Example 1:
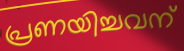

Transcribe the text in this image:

പ്രണയിച്ചവന്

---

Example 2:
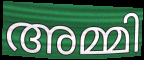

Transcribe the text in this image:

അമ്മി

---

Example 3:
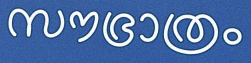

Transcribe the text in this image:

സൗഭ്രാത്രം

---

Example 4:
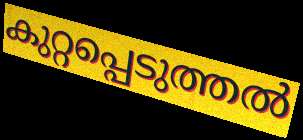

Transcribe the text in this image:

കുറ്റപ്പെടുത്തൽ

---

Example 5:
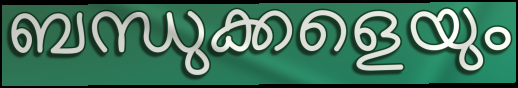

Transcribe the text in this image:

ബന്ധുക്കളെയും